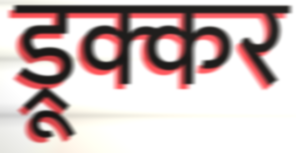
ड्रूक्कर